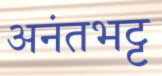
अनंतभट्ट